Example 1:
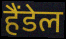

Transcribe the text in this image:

हैंडेल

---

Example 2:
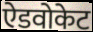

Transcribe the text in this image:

ऐडवोकेट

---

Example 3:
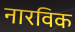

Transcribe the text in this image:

नारविक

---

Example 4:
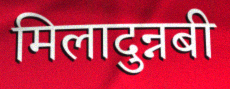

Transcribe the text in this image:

मिलादुन्नबी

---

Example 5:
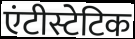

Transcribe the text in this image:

एंटीस्टेटिक